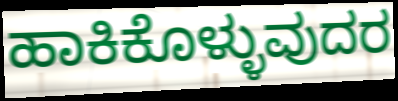
ಹಾಕಿಕೊಳ್ಳುವುದರ